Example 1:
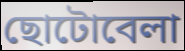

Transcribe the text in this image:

ছোটোবেলা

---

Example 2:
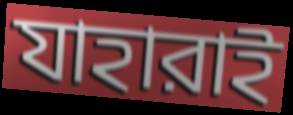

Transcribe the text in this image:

যাহারাই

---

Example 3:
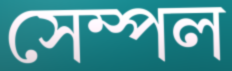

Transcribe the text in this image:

সেম্পল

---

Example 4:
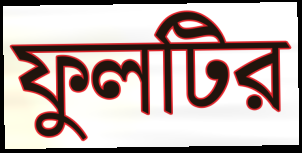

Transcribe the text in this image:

ফুলটির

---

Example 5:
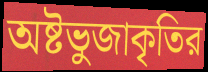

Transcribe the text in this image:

অষ্টভুজাকৃতির